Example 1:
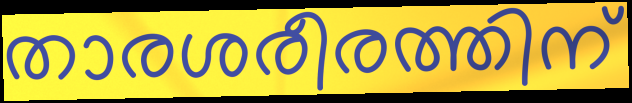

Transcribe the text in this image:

താരശരീരത്തിന്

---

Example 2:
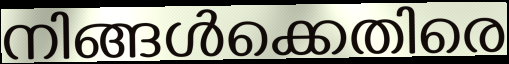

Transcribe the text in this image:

നിങ്ങൾക്കെതിരെ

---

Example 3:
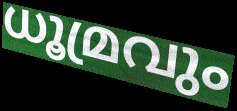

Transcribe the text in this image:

ധൂമ്രവും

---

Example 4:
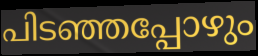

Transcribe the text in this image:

പിടഞ്ഞപ്പോഴും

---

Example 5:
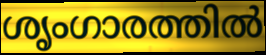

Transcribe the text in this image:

ശൃംഗാരത്തിൽ